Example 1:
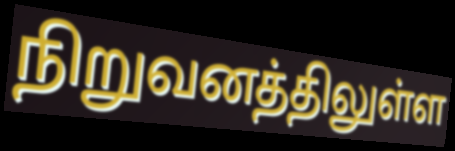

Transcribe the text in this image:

நிறுவனத்திலுள்ள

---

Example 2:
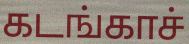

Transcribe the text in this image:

கடங்காச்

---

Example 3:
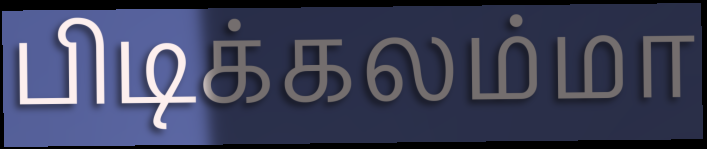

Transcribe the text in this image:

பிடிக்கலம்மா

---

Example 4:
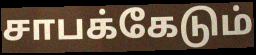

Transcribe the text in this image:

சாபக்கேடும்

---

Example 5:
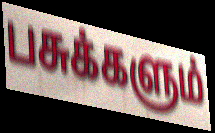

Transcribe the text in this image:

பசுக்களும்